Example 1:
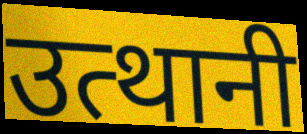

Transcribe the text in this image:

उत्थानी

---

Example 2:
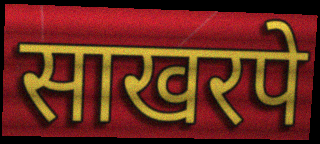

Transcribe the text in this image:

साखरपे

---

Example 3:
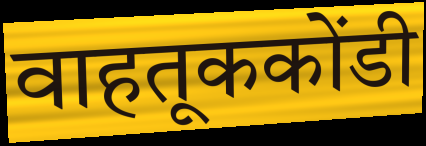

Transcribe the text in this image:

वाहतूककोंडी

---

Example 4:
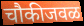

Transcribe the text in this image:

चौकीजवळ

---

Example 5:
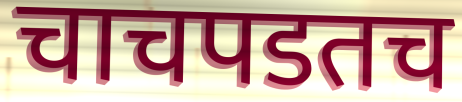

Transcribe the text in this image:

चाचपडतच